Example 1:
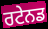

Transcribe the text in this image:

ਰਟੇਨਡ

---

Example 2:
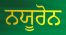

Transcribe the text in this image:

ਨਯੂਰੋਨ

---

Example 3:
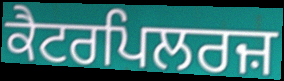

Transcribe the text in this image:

ਕੈਟਰਪਿਲਰਜ਼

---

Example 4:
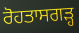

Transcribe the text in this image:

ਰੋਹਤਾਸਗੜ੍ਹ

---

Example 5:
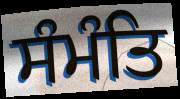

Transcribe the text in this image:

ਸੰਮੰਤਿ